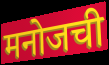
मनोजची